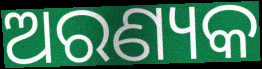
ଅରଣ୍ୟକ